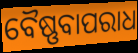
ବୈଷ୍ଣବାପରାଧ